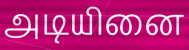
அடியினை